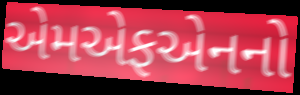
એમએફએનનો